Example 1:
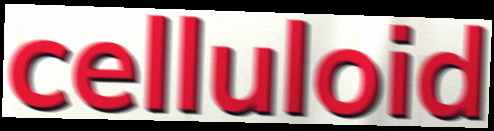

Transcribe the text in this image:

celluloid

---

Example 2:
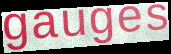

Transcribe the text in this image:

gauges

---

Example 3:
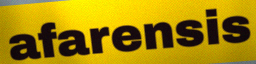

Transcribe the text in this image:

afarensis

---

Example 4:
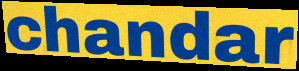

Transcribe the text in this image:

chandar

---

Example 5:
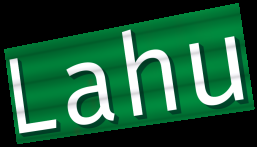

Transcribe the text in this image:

Lahu